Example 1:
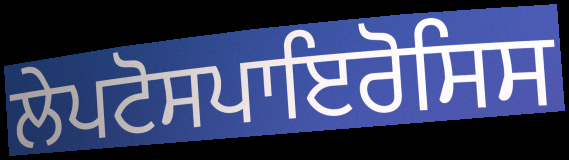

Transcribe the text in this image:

ਲੇਪਟੋਸਪਾਇਰੋਸਿਸ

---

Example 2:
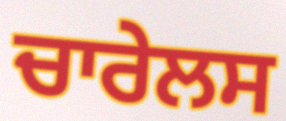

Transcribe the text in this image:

ਚਾਰੇਲਸ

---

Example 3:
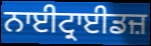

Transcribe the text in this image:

ਨਾਈਟ੍ਰਾਈਡਜ਼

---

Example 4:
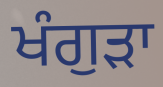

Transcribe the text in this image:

ਖੰਗੁੜਾ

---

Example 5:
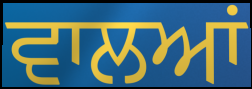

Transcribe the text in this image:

ਵਾਲਆਂ